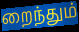
றைந்தும்